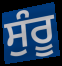
ਸੁੰਰੂ